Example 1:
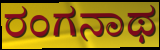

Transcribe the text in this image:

ರಂಗನಾಥ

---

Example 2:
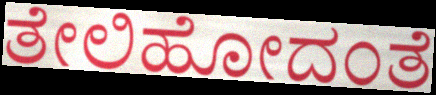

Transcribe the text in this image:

ತೇಲಿಹೋದಂತೆ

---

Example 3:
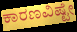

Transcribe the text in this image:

ಕಾರಣವಿಷ್ಟೇ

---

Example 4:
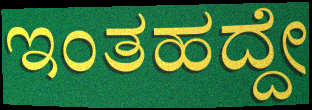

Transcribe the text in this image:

ಇಂತಹದ್ದೇ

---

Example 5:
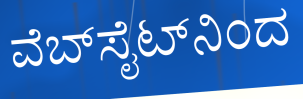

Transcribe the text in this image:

ವೆಬ್‍ಸೈಟ್‍ನಿಂದ